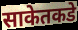
साकेतकडे